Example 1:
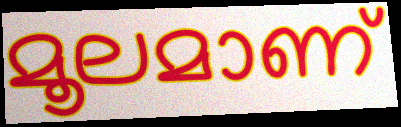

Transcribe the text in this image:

മൂലമാണ്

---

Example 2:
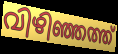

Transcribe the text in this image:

വിഴിഞ്ഞത്ത്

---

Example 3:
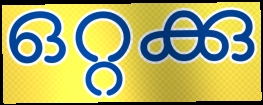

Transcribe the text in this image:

ഒറ്റക്കു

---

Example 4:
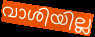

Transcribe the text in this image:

വാശിയില്ല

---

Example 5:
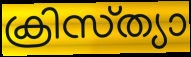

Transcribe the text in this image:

ക്രിസ്‌ത്യാ